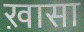
ख़ासा